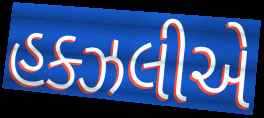
હક્ઝલીએ